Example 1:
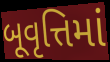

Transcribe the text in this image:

બૂવૃત્તિમાં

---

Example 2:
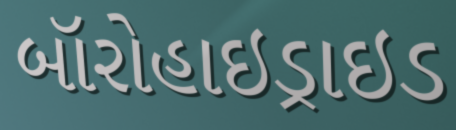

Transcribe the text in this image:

બૉરોહાઇડ્રાઇડ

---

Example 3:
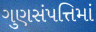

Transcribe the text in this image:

ગુણસંપત્તિમાં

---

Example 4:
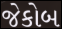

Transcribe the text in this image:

જેકોબ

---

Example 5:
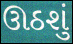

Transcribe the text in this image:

ઊઠશું